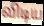
விடிய